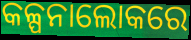
କଳ୍ପନାଲୋକରେ